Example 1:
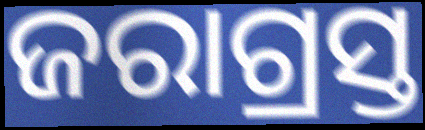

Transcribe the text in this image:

ଜରାଗ୍ରସ୍ତ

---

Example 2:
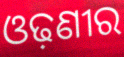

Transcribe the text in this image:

ଓଢ଼ଣୀର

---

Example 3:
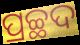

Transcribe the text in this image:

ପ୍ରଚ୍ଛଦ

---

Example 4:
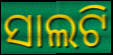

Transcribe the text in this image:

ସାଲଟି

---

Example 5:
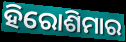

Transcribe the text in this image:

ହିରୋଶିମାର